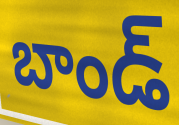
బాండ్